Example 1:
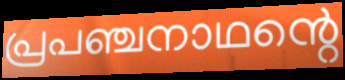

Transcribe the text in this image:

പ്രപഞ്ചനാഥന്റെ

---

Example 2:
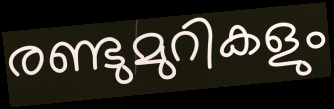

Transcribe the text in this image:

രണ്ടുമുറികളും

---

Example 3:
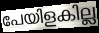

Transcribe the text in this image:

പേയിളകില്ല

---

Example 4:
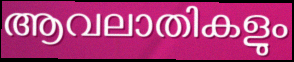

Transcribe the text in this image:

ആവലാതികളും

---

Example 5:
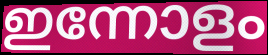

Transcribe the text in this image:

ഇന്നോളം